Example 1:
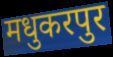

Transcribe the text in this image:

मधुकरपुर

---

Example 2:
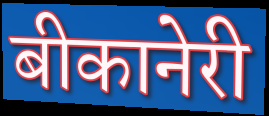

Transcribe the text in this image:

बीकानेरी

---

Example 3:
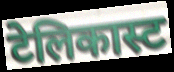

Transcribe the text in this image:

टेलिकास्ट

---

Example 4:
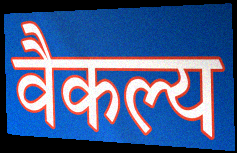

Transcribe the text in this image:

वैकल्य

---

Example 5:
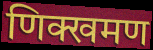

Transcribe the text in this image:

णिक्खमण